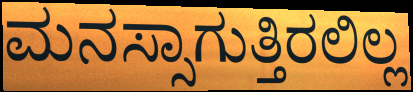
ಮನಸ್ಸಾಗುತ್ತಿರಲಿಲ್ಲ